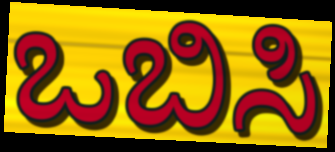
ಒಬಿಸಿ